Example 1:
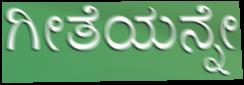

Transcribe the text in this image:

ಗೀತೆಯನ್ನೇ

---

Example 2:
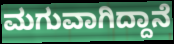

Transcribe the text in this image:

ಮಗುವಾಗಿದ್ದಾನೆ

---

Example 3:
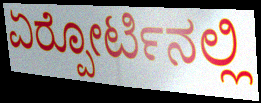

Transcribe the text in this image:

ಏರ್‍ಪೋರ್ಟಿನಲ್ಲಿ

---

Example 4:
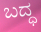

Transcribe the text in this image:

ಬದ್ಧ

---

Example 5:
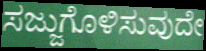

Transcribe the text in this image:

ಸಜ್ಜುಗೊಳಿಸುವುದೇ